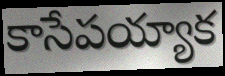
కాసేపయ్యాక